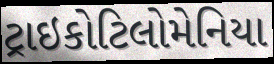
ટ્રાઇકોટિલોમેનિયા